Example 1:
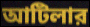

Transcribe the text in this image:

আটিলার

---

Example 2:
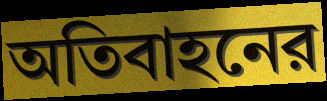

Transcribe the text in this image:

অতিবাহনের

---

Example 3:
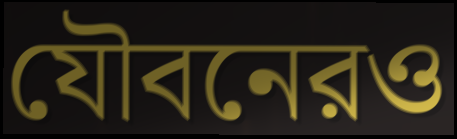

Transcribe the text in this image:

যৌবনেরও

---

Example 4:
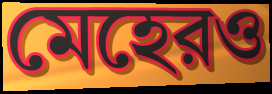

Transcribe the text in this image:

মেহেরও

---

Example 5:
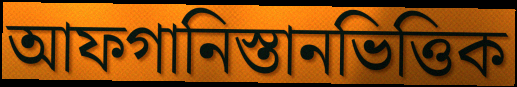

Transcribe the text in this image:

আফগানিস্তানভিত্তিক